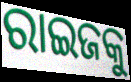
ରାଇଜକୁ